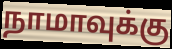
நாமாவுக்கு